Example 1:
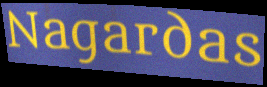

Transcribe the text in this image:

Nagardas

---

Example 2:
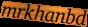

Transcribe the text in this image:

mrkhanbd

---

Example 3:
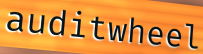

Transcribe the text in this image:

auditwheel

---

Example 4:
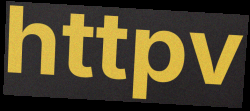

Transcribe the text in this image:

httpv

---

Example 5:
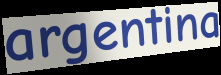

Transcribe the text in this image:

argentina